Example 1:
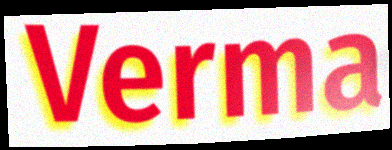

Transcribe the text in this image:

Verma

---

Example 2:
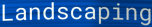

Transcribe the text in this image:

Landscaping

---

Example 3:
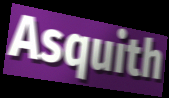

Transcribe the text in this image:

Asquith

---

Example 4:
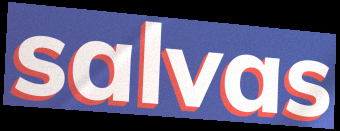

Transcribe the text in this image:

salvas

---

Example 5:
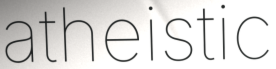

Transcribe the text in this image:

atheistic